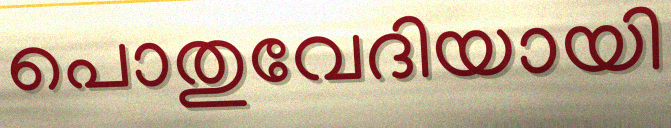
പൊതുവേദിയായി